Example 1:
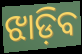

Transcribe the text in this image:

ଝାଡ଼ିବ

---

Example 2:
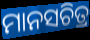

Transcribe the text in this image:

ମାନସଚିତ୍ର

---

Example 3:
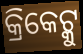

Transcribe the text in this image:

କ୍ରିକେଟ୍କୁ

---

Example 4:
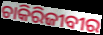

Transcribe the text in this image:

ଚାକିରିଜୀବୀର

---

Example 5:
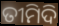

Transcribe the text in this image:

ତୀମିଦି